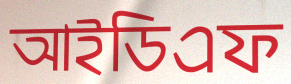
আইডিএফ